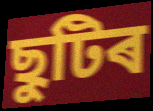
ছুটিৰ